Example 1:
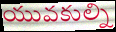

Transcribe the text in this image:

యువకుల్ని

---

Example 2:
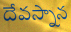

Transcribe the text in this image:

దేవస్నాన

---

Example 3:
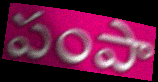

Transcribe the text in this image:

పంపా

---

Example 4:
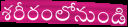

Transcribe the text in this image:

శరీరంలోనుండి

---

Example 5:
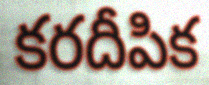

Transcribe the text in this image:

కరదీపిక